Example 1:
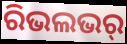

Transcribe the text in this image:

ରିଭଲଭର୍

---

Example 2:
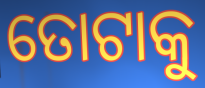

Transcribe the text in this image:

ତୋଟାକୁ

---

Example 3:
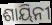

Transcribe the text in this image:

ଶାୟିନୀ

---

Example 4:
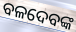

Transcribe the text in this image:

ବଳଦେବଙ୍କ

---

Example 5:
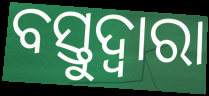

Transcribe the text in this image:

ବସ୍ତୁଦ୍ଵାରା